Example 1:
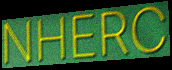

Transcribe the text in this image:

NHERC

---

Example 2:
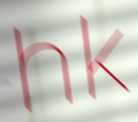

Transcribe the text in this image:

hk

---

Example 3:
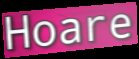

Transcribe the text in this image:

Hoare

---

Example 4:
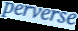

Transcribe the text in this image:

perverse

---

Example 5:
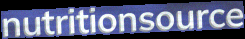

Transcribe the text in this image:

nutritionsource